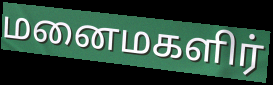
மனைமகளிர்